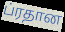
ப்ரதான